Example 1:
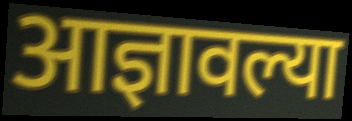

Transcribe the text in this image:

आज्ञावल्या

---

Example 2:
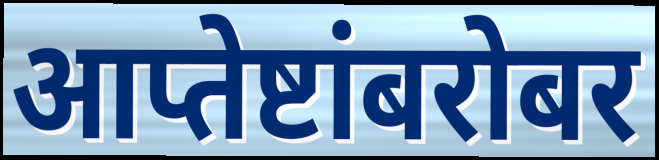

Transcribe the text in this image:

आप्तेष्टांबरोबर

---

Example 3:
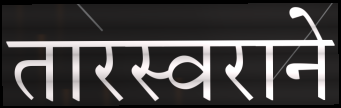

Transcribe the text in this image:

तारस्वराने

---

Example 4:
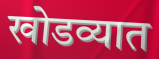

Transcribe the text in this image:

खोडव्यात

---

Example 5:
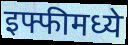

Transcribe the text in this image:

इफ्फीमध्ये